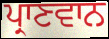
ਪ੍ਰਾਣਵਾਨ